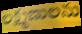
లక్ష్మణులను